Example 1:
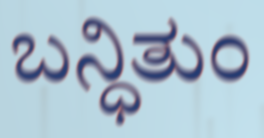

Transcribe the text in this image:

ಬನ್ಧಿತುಂ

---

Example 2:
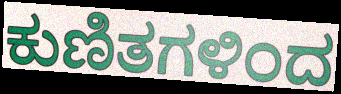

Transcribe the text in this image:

ಕುಣಿತಗಳಿಂದ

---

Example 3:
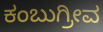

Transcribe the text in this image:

ಕಂಬುಗ್ರೀವ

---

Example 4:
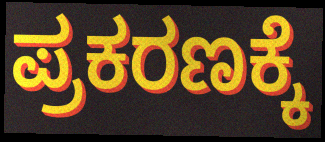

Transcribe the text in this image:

ಪ್ರಕರಣಕ್ಕೆ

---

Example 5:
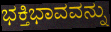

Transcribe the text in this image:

ಭಕ್ತಿಭಾವವನ್ನು